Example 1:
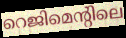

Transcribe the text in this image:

റെജിമെന്റിലെ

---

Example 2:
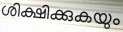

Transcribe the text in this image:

ശിക്ഷിക്കുകയും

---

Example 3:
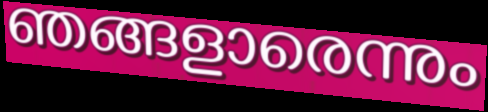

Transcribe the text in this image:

ഞങ്ങളാരെന്നും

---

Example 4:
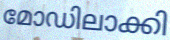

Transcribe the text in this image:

മോഡിലാക്കി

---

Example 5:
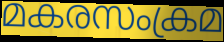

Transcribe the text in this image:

മകരസംക്രമ